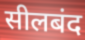
सीलबंद